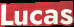
Lucas